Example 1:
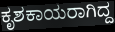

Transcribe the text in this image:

ಕೃಶಕಾಯರಾಗಿದ್ದ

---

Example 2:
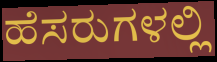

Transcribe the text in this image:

ಹೆಸರುಗಳಲ್ಲಿ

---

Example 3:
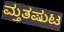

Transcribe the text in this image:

ಮ್ತತಷುಟ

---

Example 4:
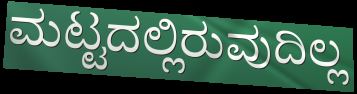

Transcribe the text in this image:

ಮಟ್ಟದಲ್ಲಿರುವುದಿಲ್ಲ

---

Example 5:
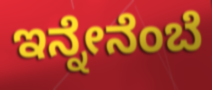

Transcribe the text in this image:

ಇನ್ನೇನೆಂಬೆ